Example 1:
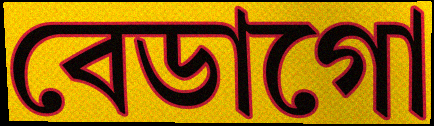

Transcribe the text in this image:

বেডাগো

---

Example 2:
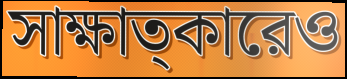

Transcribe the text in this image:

সাক্ষাত্কারেও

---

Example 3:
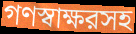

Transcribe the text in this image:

গণস্বাক্ষরসহ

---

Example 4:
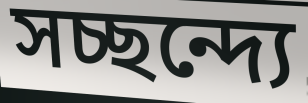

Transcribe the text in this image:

সচ্ছন্দ্যে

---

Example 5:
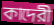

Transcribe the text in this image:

কাদেরী